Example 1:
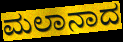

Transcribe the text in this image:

ಮಲಾನಾದ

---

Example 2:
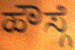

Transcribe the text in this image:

ಹೌಸ್ಗೆ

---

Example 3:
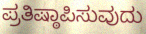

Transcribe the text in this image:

ಪ್ರತಿಷ್ಠಾಪಿಸುವುದು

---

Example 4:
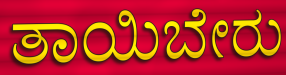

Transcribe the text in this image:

ತಾಯಿಬೇರು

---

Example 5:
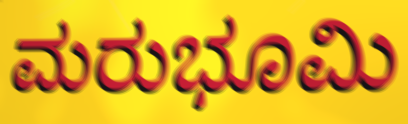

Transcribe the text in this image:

ಮರುಭೂಮಿ